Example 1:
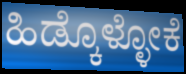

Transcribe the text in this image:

ಹಿಡ್ಕೊಳ್ಳೋಕೆ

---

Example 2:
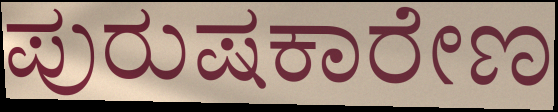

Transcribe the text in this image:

ಪುರುಷಕಾರೇಣ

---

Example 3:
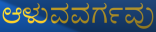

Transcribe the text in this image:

ಆಳುವವರ್ಗವು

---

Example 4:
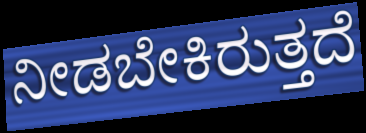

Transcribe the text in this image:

ನೀಡಬೇಕಿರುತ್ತದೆ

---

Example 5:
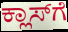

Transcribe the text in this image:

ಕ್ಲಾಸ್‌ಗೆ